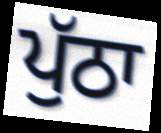
ਪੁੱਠਾ